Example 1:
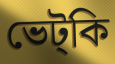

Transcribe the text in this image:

ভেট্কি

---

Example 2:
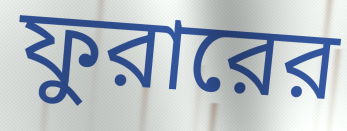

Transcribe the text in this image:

ফুরারের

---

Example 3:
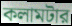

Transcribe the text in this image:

কলামটার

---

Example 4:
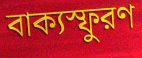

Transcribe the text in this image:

বাক্যস্ফুরণ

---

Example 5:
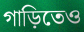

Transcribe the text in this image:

গাড়িতেও